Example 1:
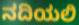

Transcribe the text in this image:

ನದಿಯಲಿ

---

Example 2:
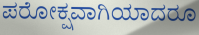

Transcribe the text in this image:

ಪರೋಕ್ಷವಾಗಿಯಾದರೂ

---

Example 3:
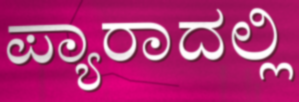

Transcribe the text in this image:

ಪ್ಯಾರಾದಲ್ಲಿ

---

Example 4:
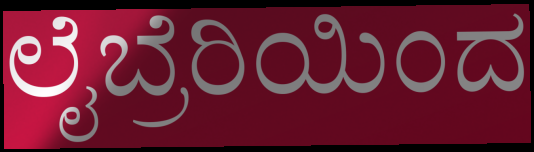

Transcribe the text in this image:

ಲೈಬ್ರೆರಿಯಿಂದ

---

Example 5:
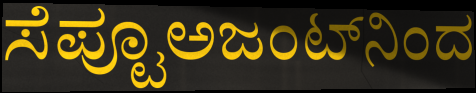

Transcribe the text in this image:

ಸೆಪ್ಟೂಅಜಂಟ್‌ನಿಂದ